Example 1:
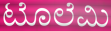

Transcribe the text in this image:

ಟೊಲೆಮಿ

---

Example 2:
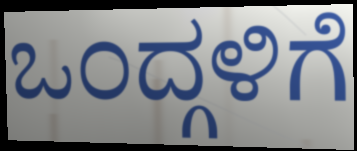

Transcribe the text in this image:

ಒಂದ್ಗಳಿಗೆ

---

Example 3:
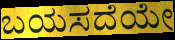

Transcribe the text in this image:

ಬಯಸದೆಯೇ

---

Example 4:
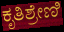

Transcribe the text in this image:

ಕೃತಿಶ್ರೇಣಿ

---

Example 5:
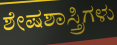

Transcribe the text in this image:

ಶೇಷಶಾಸ್ತ್ರಿಗಳು